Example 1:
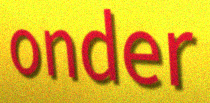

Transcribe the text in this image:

onder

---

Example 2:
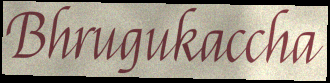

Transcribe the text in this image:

Bhrugukaccha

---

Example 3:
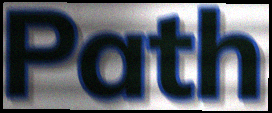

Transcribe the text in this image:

Path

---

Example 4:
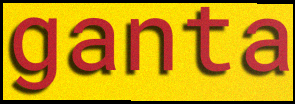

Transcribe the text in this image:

ganta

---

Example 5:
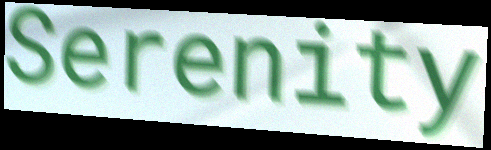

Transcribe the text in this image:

Serenity